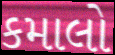
કમાલો